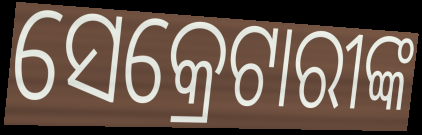
ସେକ୍ରେଟାରୀଙ୍କ